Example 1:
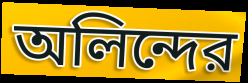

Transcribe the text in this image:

অলিন্দের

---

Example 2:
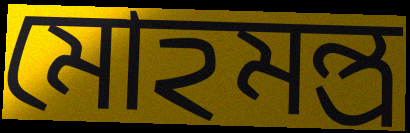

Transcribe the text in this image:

মোহমন্ত্র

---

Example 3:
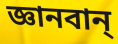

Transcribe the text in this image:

জ্ঞানবান্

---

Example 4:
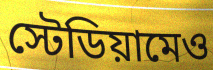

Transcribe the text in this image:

স্টেডিয়ামেও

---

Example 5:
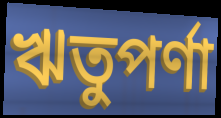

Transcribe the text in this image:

ঋতুপর্ণা